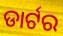
ଡାର୍ଟର